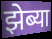
झेब्या